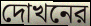
দোখনের